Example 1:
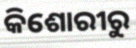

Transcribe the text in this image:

କିଶୋରୀରୁ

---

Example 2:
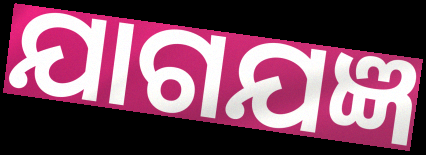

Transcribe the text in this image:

ଯାଗଯଜ୍ଞ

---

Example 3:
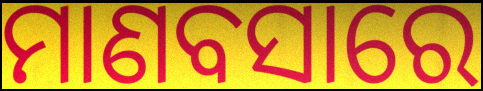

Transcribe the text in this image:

ମାଣବସାରେ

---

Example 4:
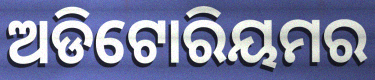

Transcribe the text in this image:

ଅଡିଟୋରିୟମର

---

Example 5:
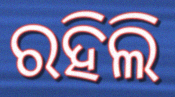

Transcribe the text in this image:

ରହିଲି